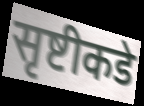
सृष्टीकडे